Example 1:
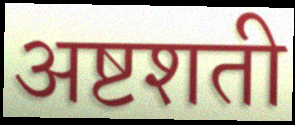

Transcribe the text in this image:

अष्टशती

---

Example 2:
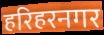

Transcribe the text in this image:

हरिहरनगर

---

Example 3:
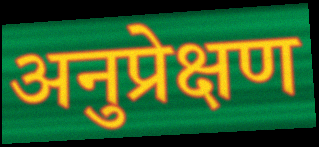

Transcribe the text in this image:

अनुप्रेक्षण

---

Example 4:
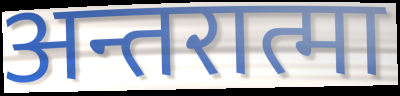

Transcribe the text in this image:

अन्तरात्मा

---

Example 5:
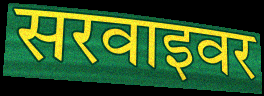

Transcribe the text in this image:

सरवाइवर